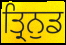
ਤ੍ਰਿਨੁਡ